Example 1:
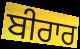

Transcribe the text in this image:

ਬੀਰਾਰ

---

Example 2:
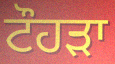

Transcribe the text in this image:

ਟੌਹਡ਼ਾ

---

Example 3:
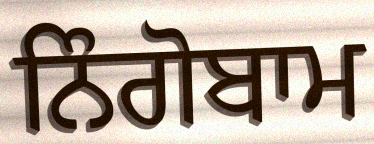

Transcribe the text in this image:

ਨਿੰਗੋਬਾਮ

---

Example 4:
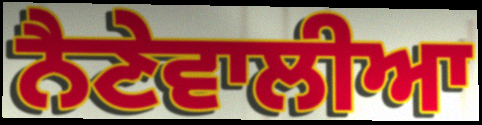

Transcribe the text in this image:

ਨੈਣੇਵਾਲੀਆ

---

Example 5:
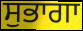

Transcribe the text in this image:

ਸੁਭਾਗਾ